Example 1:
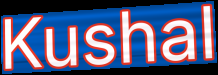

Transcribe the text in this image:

Kushal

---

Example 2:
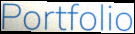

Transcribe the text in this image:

Portfolio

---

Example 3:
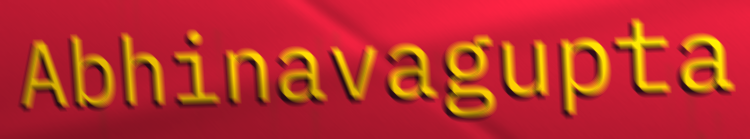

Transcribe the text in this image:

Abhinavagupta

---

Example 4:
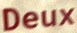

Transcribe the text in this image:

Deux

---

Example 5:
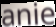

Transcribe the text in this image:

anie